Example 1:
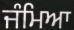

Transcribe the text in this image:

ਜੰਮਿਆ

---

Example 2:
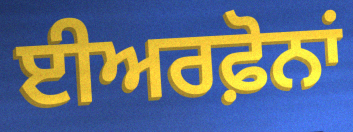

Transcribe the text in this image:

ਈਅਰਫ਼ੋਨਾਂ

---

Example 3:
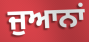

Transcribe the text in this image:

ਜੁਆਨਾਂ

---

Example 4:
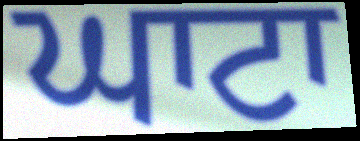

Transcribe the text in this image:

ਘਾਟਾ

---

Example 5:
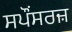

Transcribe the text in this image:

ਸਪੌਂਸਰਜ਼